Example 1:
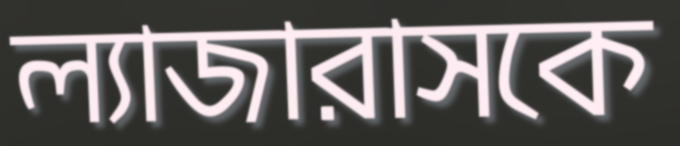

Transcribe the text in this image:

ল্যাজারাসকে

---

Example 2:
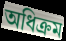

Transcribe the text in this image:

অধিক্রম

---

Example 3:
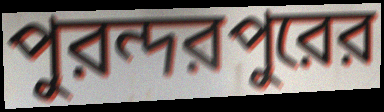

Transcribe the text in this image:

পুরন্দরপুরের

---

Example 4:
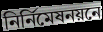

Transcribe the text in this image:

নির্নিমেষনয়নে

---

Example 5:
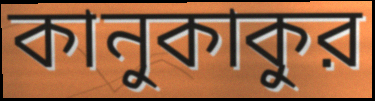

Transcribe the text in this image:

কানুকাকুর